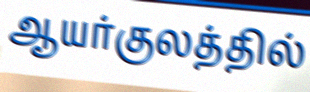
ஆயர்குலத்தில்